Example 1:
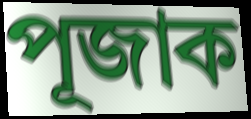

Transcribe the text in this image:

পূজাক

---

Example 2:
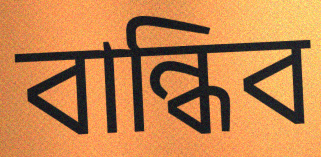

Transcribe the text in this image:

বান্ধিব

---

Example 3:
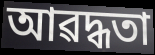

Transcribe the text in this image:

আৱদ্ধতা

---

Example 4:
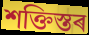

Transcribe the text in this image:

শক্তিস্তৰ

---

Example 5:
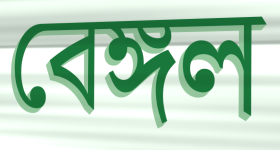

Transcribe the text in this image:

বেঙ্গল